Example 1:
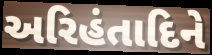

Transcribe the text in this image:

અરિહંતાદિને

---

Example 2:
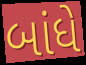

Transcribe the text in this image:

બાંધે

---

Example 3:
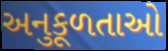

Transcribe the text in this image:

અનુકૂળતાઓ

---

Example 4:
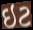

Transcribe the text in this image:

ઇટ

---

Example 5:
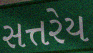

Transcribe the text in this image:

સત્તરેય